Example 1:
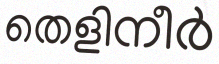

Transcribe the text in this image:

തെളിനീർ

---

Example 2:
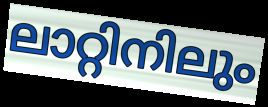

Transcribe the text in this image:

ലാറ്റിനിലും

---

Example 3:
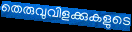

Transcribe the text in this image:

തെരുവുവിളക്കുകളുടെ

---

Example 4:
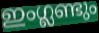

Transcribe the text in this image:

ഇംഗ്ലണ്ടും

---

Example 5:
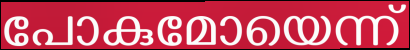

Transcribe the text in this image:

പോകുമോയെന്ന്